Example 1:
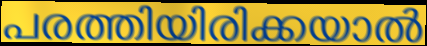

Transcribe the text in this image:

പരത്തിയിരിക്കയാൽ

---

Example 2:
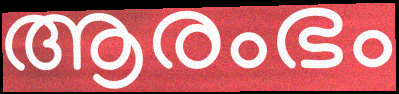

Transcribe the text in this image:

ആരംഭം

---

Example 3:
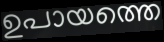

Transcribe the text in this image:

ഉപായത്തെ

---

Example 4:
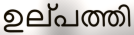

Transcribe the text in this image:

ഉല്‌പത്തി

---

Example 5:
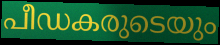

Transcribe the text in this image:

പീഡകരുടെയും